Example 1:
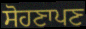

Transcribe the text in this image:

ਸੋਹਣਾਪਣ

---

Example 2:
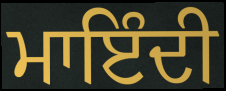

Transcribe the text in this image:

ਮਾਇੰਦੀ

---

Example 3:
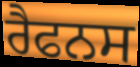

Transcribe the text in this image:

ਰੈਫਨਸ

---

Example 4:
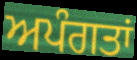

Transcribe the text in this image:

ਅਪੰਗਤਾਂ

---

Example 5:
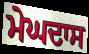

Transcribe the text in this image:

ਮੇਘਦਾਸ